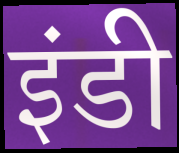
इंडी